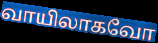
வாயிலாகவோ